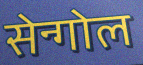
सेन्गोल